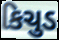
કિચુડ